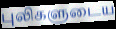
புலிகளுடைய